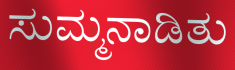
ಸುಮ್ಮನಾಡಿತು